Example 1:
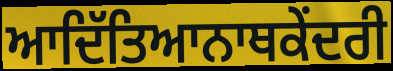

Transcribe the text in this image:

ਆਦਿੱਤਿਆਨਾਥਕੇਂਦਰੀ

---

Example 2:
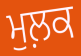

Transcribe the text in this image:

ਮੁਲ਼ਕ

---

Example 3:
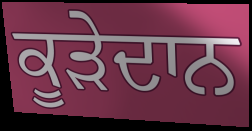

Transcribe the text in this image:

ਕੂੜੇਦਾਨ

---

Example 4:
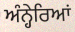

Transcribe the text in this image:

ਅੰਨ੍ਹੇਰਿਆਂ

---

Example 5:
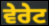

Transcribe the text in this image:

ਵੇਰੇਟ